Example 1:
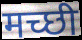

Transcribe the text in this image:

मच्छी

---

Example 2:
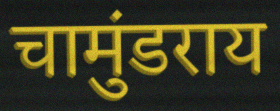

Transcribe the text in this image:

चामुंडराय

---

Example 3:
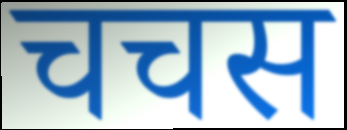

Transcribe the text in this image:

चचस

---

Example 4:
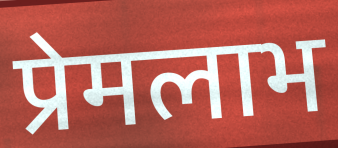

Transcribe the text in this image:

प्रेमलाभ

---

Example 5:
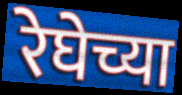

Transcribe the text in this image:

रेघेच्या